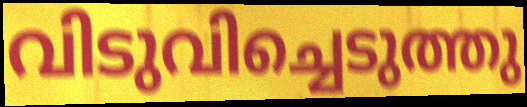
വിടുവിച്ചെടുത്തു